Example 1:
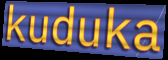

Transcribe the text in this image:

kuduka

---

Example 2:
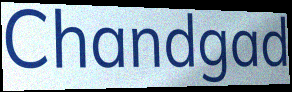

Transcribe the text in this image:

Chandgad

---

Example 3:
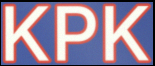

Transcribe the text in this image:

KPK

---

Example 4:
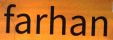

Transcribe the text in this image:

farhan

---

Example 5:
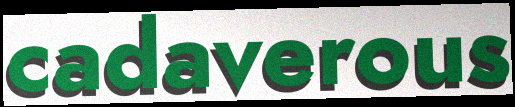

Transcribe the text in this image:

cadaverous